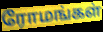
ரோமங்கள்